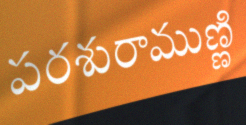
పరశురాముణ్ణి